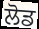
ਲੋਡ